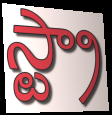
స్ట్రా